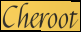
Cheroot